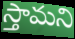
స్తామని